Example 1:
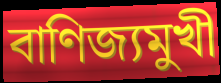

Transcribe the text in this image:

বাণিজ্যমুখী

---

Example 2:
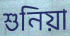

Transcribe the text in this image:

শুনিয়া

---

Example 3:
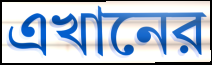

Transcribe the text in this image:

এখানের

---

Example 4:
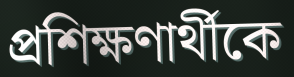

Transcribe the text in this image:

প্রশিক্ষণার্থীকে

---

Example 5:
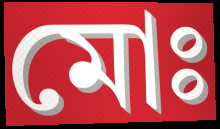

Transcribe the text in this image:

মোঃ